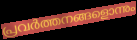
പ്രവർത്തനങ്ങളൊന്നും